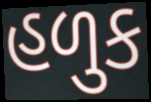
હળુક